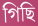
গিছি